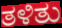
ತಳಿತು